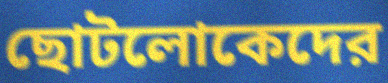
ছোটলোকেদের